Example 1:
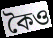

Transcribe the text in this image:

কৈও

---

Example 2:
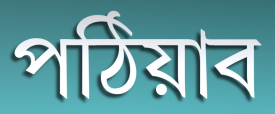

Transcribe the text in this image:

পঠিয়াব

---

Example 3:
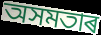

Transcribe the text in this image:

অসমতাৰ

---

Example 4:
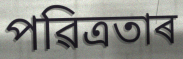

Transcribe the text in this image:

পৱিত্ৰতাৰ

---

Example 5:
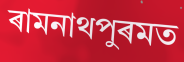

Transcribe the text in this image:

ৰামনাথপুৰমত